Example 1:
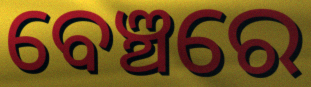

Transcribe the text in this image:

ବେଞ୍ଚରେ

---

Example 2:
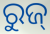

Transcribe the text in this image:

ରୁଜ୍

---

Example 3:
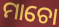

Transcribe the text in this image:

ମାଚୋ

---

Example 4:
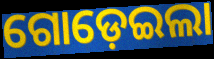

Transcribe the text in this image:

ଗୋଡ଼େଇଲା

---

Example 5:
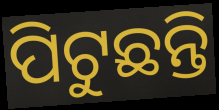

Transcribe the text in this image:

ପିଟୁଛନ୍ତି